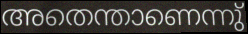
അതെന്താണെന്നു്